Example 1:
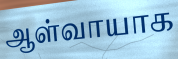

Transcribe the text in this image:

ஆள்வாயாக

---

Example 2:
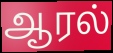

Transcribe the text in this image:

ஆரல்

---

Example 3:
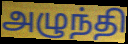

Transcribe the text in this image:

அழுந்தி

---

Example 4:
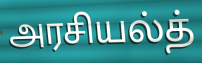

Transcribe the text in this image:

அரசியல்த்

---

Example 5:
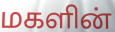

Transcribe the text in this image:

மகளின்